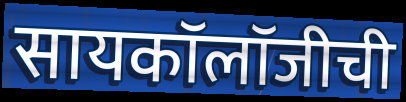
सायकॉलॉजीची